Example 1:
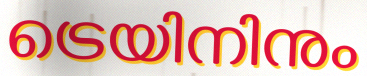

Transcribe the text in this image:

ട്രെയിനിനും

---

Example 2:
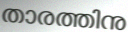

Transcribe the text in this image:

താരത്തിനു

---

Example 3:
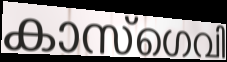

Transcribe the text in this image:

കാസ്ഗെവി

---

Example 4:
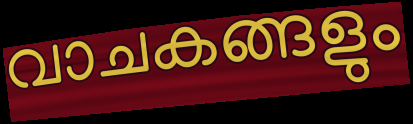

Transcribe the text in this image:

വാചകങ്ങളും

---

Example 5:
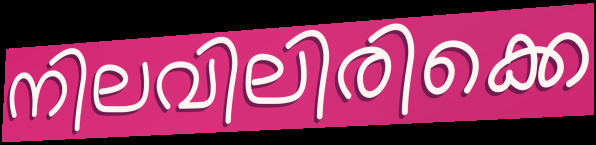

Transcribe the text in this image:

നിലവിലിരിക്കെ